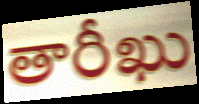
తారీఖు